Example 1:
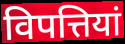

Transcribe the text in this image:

विपत्तियां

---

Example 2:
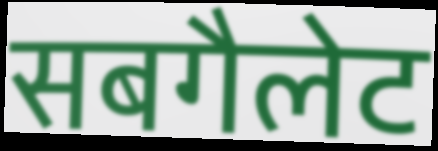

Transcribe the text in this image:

सबगैलेट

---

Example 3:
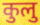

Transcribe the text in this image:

कुलु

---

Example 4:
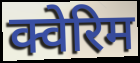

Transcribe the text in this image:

क्वेरिम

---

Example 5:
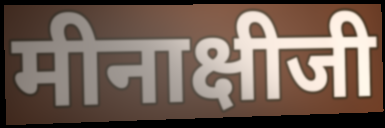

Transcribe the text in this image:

मीनाक्षीजी